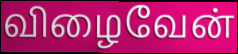
விழைவேன்